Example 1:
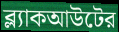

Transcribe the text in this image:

ব্ল্যাকআউটের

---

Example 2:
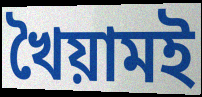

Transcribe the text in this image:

খৈয়ামই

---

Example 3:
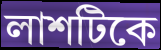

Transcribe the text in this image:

লাশটিকে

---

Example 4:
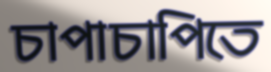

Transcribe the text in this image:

চাপাচাপিতে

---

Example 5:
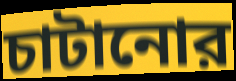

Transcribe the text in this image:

চাটানোর